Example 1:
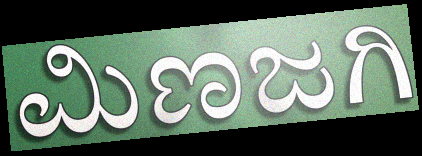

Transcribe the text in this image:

ಮಿಣಜಗಿ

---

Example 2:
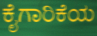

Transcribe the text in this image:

ಕೈಗಾರಿಕೆಯ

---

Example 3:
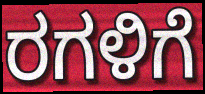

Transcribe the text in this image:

ರಗಳಿಗೆ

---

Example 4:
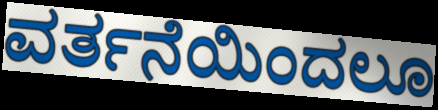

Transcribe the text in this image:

ವರ್ತನೆಯಿಂದಲೂ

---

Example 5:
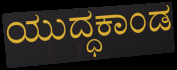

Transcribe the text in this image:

ಯುದ್ಧಕಾಂಡ